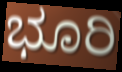
ಭೂರಿ